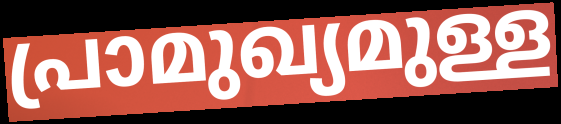
പ്രാമുഖ്യമുള്ള